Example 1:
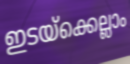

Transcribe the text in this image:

ഇടയ്ക്കെല്ലാം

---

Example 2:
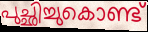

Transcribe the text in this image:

പുച്ഛിച്ചുകൊണ്ട്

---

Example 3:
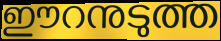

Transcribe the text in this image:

ഈറനുടുത്ത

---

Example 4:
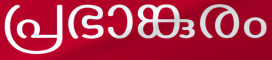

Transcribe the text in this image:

പ്രഭാങ്കുരം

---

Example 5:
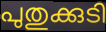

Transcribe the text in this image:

പുതുക്കുടി